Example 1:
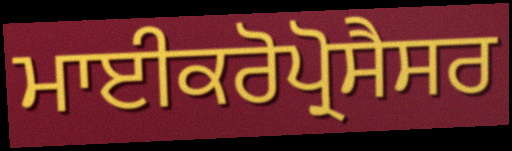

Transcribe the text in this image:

ਮਾਈਕਰੋਪ੍ਰੋਸੈਸਰ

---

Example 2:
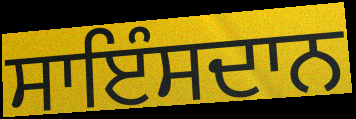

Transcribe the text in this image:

ਸਾਇੰਸਦਾਨ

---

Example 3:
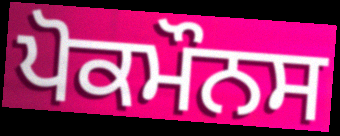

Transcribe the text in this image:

ਪੋਕਮੌਨਸ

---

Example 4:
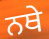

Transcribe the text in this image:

ਨਥੇ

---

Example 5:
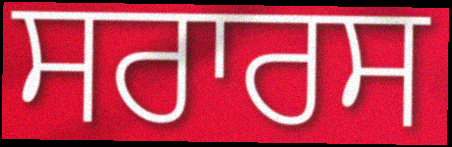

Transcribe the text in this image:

ਸਰਾਰਸ